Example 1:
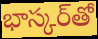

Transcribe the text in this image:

భాస్కర్‌తో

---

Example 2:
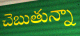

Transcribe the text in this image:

చెబుతున్నా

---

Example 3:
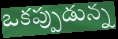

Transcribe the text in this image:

ఒకప్పుడున్న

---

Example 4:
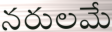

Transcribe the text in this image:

నరులమే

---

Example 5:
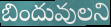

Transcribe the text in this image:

బిందువులని